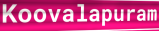
Koovalapuram